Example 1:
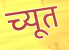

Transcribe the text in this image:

च्यूत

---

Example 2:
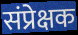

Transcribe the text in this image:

संप्रेक्षक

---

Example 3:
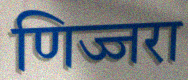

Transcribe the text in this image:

णिज्जरा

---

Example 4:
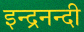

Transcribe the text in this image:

इन्द्रनन्दी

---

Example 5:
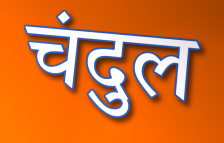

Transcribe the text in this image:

चंदुल